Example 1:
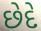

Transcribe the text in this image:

છેદે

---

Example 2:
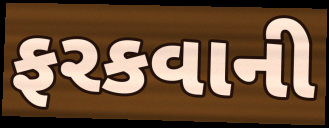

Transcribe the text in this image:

ફરકવાની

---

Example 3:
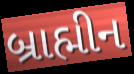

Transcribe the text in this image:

બ્રાહ્મીન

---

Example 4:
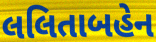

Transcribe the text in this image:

લલિતાબહેન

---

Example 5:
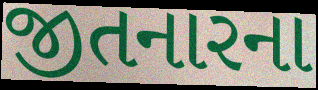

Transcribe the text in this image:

જીતનારના